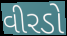
વીરડો